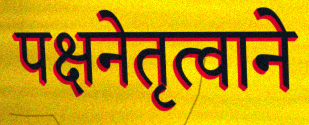
पक्षनेतृत्वाने